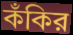
কঁকির